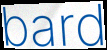
bard